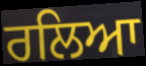
ਰਲਿਆ